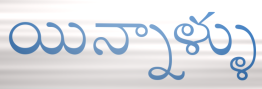
యిన్నాళ్ళు